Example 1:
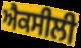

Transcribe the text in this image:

ਐਕਸੀਲੀ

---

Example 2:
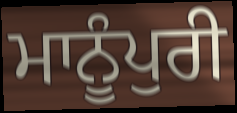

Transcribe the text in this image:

ਮਾਨੂੰਪੁਰੀ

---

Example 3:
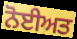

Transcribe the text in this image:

ਨੋਈਅਤ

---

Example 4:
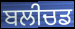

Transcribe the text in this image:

ਬਲੀਚਡ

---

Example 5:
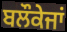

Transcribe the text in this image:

ਬਲੌਕੇਜਾਂ